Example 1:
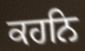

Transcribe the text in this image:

ਕਹਨਿ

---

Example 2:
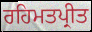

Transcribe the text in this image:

ਰਹਿਮਤਪ੍ਰੀਤ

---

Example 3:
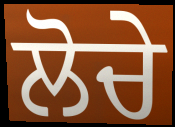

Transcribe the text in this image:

ਲੋਚੇ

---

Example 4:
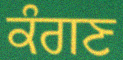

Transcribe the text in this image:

ਕੰਗਣ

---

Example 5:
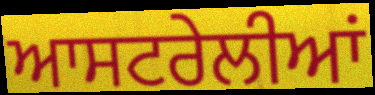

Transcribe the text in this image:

ਆਸਟਰੇਲੀਆਂ